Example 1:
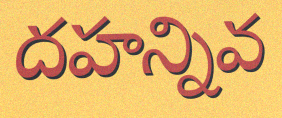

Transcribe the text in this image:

దహన్నివ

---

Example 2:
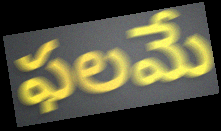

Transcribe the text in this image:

ఫలమే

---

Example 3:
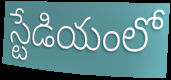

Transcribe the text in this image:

స్టేడియంలో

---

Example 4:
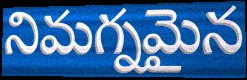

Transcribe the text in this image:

నిమగ్నమైన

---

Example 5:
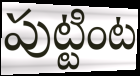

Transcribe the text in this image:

పుట్టింట